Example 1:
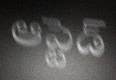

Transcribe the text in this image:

ఆప్టెడ్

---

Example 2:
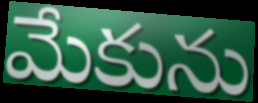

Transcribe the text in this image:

మేకును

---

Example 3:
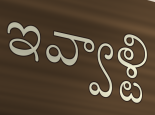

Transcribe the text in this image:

ఇవ్వాళ్టి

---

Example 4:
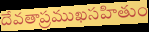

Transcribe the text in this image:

దేవతాప్రముఖసహితుం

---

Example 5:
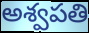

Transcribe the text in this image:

అశ్వపతి